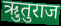
ऋुतुराज